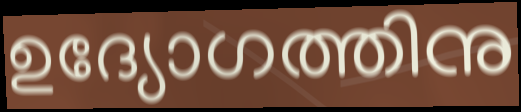
ഉദ്യോഗത്തിനു